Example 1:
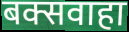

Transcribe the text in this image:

बक्सवाहा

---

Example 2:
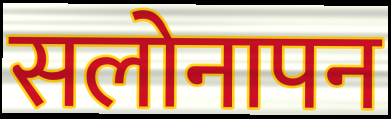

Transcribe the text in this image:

सलोनापन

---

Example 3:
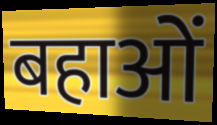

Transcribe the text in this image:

बहाओं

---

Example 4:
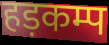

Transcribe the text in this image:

हड़कम्‍प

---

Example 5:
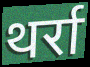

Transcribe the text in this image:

थर्रा